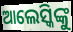
ଆଲେସ୍କିଙ୍କୁ